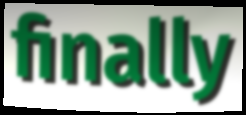
finally